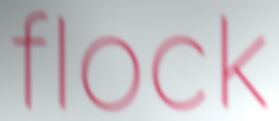
flock